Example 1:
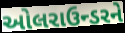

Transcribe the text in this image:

ઓલરાઉન્ડરને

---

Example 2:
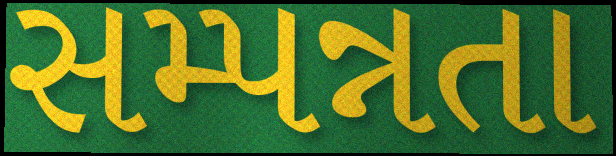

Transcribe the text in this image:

સમ્પન્નતા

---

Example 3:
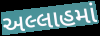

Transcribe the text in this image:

અલ્લાહમાં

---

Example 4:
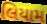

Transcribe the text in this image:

લિયામ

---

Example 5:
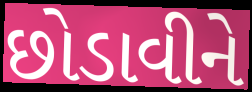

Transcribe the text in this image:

છોડાવીને